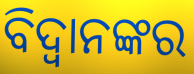
ବିଦ୍ୱାନଙ୍କର